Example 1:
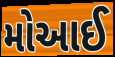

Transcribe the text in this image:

મોઆઈ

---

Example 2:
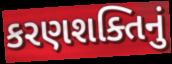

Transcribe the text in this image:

કરણશક્તિનું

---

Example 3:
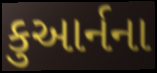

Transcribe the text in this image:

કુઆર્નના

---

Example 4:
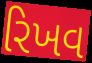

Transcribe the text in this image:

રિખવ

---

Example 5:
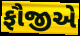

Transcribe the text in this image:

ફૌજીએ